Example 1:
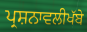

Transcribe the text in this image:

ਪ੍ਰਸ਼ਨਾਵਲੀਖੱਬੇ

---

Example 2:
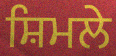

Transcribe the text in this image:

ਸ਼ਿਮਲੇ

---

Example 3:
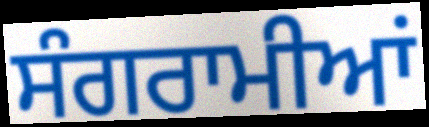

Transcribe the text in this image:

ਸੰਗਰਾਮੀਆਂ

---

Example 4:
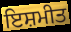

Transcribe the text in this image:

ਇਸ਼ਮੀਤ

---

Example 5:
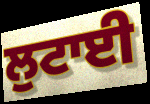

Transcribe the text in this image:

ਲੁਟਾਈ